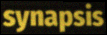
synapsis